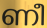
ണീ